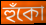
হুঁকো